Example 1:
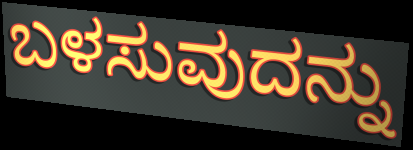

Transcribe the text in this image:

ಬಳಸುವುದನ್ನು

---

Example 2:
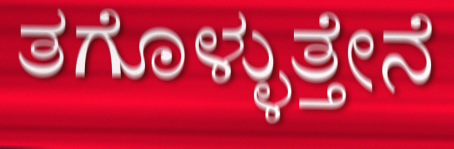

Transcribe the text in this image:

ತಗೊಳ್ಳುತ್ತೇನೆ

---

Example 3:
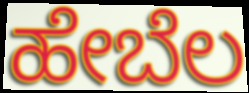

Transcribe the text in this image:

ಹೇಬೆಲ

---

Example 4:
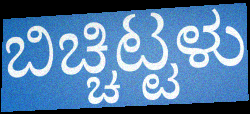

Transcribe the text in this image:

ಬಿಚ್ಚಿಟ್ಟಳು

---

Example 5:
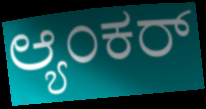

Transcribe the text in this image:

ಆ್ಯಂಕರ್